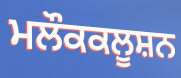
ਮਲੌਕਕਲੂਸ਼ਨ